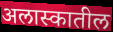
अलास्कातील